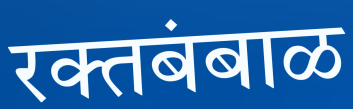
रक्तबंबाळ